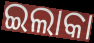
ଇଲାକା